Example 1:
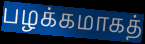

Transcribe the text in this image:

பழக்கமாகத்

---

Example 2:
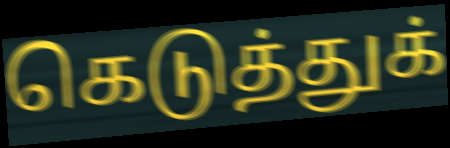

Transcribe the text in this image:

கெடுத்துக்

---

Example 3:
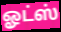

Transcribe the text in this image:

ஓட்ஸ்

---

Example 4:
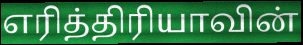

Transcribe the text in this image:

எரித்திரியாவின்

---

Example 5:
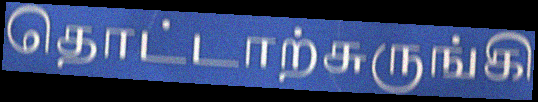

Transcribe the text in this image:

தொட்டாற்சுருங்கி